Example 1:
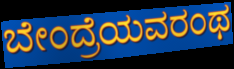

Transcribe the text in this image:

ಬೇಂದ್ರೆಯವರಂಥ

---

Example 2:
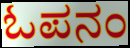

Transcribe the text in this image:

ಓಪನಂ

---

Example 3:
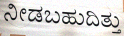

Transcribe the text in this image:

ನೀಡಬಹುದಿತ್ತು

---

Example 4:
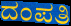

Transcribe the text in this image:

ದಂಪತಿ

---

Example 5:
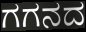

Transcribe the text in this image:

ಗಗನದ